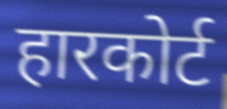
हारकोर्ट